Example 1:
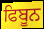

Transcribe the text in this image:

ਫਿਬੂਨ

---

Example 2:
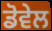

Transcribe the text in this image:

ਡੋਵੇਲ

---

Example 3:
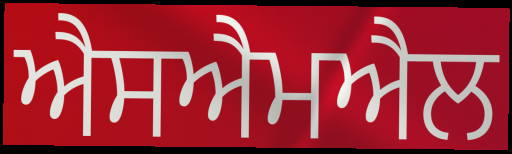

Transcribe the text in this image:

ਐਸਐਮਐਲ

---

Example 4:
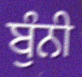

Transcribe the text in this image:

ਬੁੰਨੀ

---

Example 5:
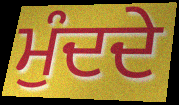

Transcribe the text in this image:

ਮੁੰਦਦੇ